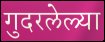
गुदरलेल्या